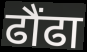
ढौंढा